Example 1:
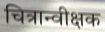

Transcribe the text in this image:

चित्रान्वीक्षक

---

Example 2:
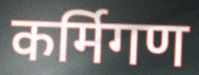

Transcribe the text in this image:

कर्मिगण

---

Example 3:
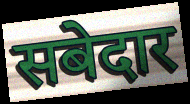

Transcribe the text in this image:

सबेदार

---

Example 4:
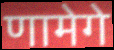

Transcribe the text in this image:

णामेगे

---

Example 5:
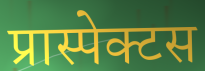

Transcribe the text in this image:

प्रास्पेक्टस